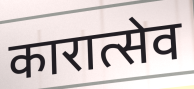
कारात्सेव